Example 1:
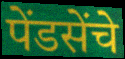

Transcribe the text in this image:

पेंडसेंचे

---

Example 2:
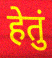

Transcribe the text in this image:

हेतुं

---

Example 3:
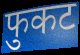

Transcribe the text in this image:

फुकट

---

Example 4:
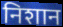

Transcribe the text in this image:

निशान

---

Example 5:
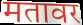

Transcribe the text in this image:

मतावर